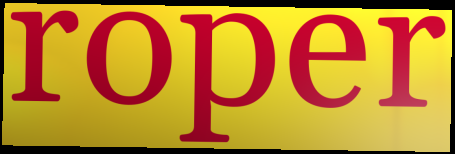
roper